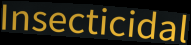
Insecticidal